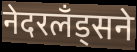
नेदरलँड्सने